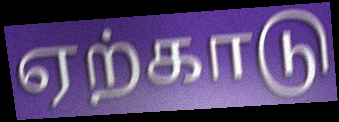
ஏற்காடு